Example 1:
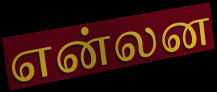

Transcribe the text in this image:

என்லன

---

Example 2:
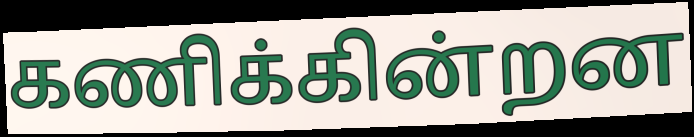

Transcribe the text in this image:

கணிக்கின்றன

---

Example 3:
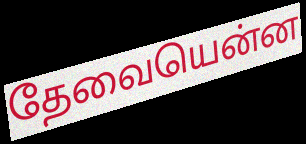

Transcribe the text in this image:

தேவையென்ன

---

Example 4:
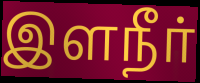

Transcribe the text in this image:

இளநீர்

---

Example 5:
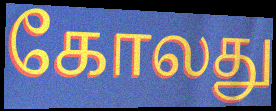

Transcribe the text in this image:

கோலது